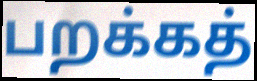
பறக்கத்